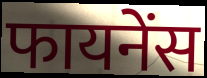
फायनेंस